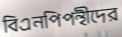
বিএনপিপন্থীদের